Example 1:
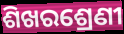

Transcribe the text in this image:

ଶିଖରଶ୍ରେଣୀ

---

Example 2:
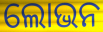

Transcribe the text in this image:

ଲୋଭନ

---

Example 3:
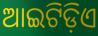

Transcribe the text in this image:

ଆଇଟିଡ଼ିଏ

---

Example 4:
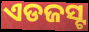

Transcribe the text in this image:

ଏଡଜସ୍ଟ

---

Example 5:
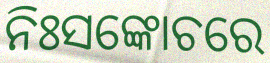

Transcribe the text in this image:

ନିଃସଙ୍କୋଚରେ